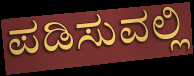
ಪಡಿಸುವಲ್ಲಿ